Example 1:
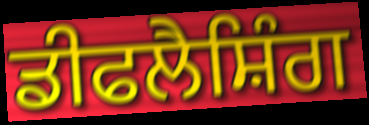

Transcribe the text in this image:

ਡੀਫਲੈਸ਼ਿੰਗ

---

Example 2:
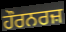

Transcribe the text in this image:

ਹੌਰਨਰਜ਼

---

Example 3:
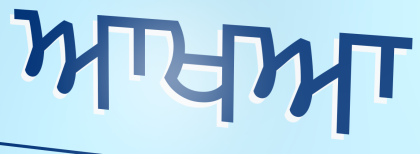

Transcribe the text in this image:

ਆਖਆ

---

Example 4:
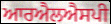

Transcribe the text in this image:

ਆਰਐਲਐਸਪੀ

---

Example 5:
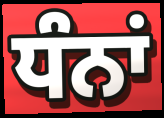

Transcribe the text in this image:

ਧੰਨਾਂ